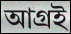
আগ্রই